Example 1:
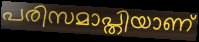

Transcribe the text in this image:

പരിസമാപ്തിയാണ്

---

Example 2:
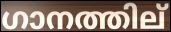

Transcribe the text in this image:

ഗാനത്തില്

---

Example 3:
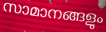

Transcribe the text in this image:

സാമാനങ്ങളും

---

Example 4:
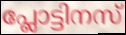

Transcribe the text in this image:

പ്ലോട്ടിനസ്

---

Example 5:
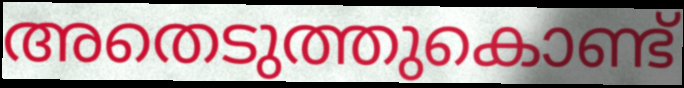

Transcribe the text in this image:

അതെടുത്തുകൊണ്ട്